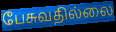
பேசுவதில்லை